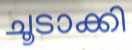
ചൂടാക്കി